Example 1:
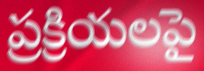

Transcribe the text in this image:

ప్రక్రియలపై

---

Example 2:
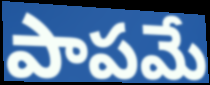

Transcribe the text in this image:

పాపమే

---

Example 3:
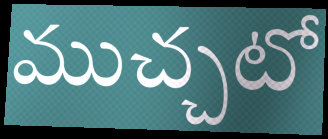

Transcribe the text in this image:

ముచ్చటో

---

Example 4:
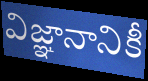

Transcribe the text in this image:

విజ్ఞానానికీ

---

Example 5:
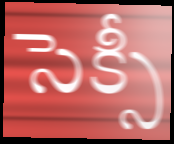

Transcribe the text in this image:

సెక్సీ